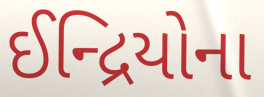
ઈન્દ્રિયોના